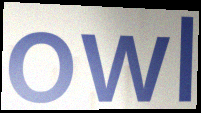
owl